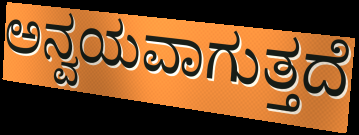
ಅನ್ವಯವಾಗುತ್ತದೆ